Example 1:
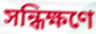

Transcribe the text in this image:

সন্ধিক্ষণে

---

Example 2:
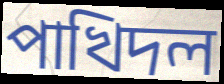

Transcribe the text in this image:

পাখিদল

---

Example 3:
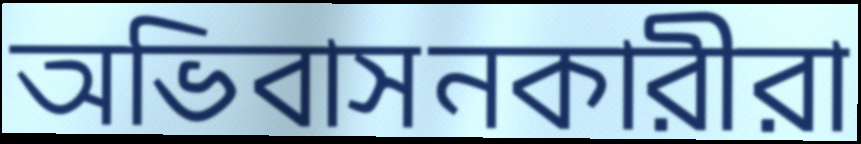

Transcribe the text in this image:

অভিবাসনকারীরা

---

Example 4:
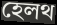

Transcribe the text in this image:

হেলথ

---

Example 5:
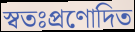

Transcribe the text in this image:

স্বতঃপ্রণোদিত